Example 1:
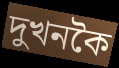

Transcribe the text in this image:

দুখনকৈ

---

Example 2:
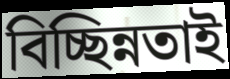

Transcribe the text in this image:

বিচ্ছিন্নতাই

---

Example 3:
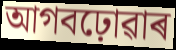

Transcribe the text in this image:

আগবঢ়োৱাৰ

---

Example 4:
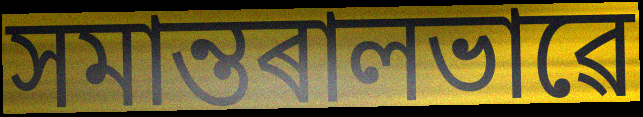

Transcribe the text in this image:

সমান্তৰালভাৱে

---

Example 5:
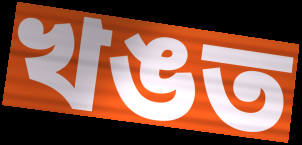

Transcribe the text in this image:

খঙত